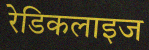
रेडिकलाइज